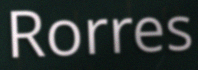
Rorres